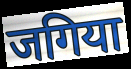
जगिया